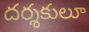
దర్శకులూ